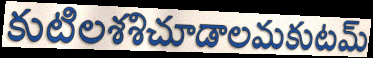
కుటిలశశిచూడాలమకుటమ్